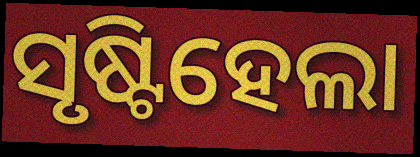
ସୃଷ୍ଟିହେଲା